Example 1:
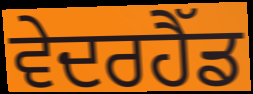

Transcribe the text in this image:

ਵੇਦਰਹੈੱਡ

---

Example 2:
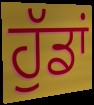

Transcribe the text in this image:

ਹੁੱਡਾਂ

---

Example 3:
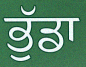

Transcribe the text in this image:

ਭੁੱਡਾ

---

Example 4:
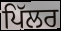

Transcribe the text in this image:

ਪਿੱਲਰ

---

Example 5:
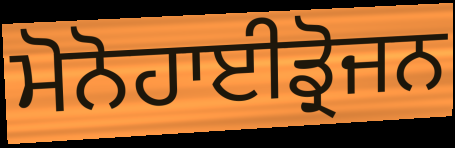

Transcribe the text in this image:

ਮੋਨੋਹਾਈਡ੍ਰੋਜਨ